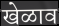
खेळाव